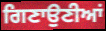
ਗਿਣਾਉਣੀਆਂ